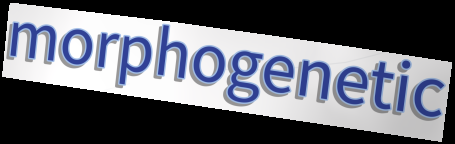
morphogenetic